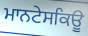
ਮਾਨਟੇਸਕਿਊ